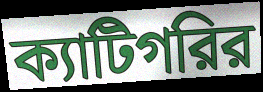
ক্যাটিগরির